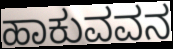
ಹಾಕುವವನ